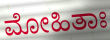
ಮೋಹಿತಾಃ